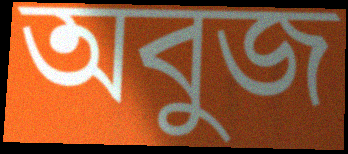
অবুজ